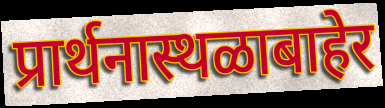
प्रार्थनास्थळाबाहेर